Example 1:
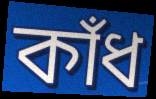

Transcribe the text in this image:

কাঁধ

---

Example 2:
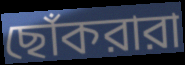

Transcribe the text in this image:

ছোঁকরারা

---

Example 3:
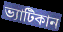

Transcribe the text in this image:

ভ্যাটিকান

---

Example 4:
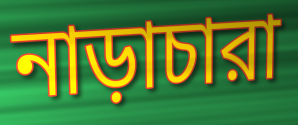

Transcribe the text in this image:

নাড়াচারা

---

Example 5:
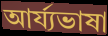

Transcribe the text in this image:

আর্য্যভাষা